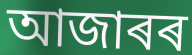
আজাৰৰ